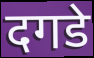
दगडे